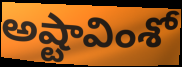
అష్టావింశో